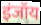
इंजॉय